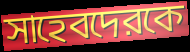
সাহেবদেরকে